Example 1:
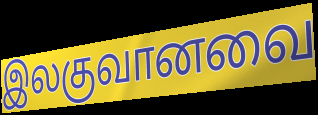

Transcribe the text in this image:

இலகுவானவை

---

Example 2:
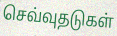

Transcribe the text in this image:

செவ்வுதடுகள்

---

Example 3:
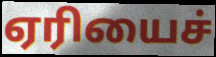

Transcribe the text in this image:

ஏரியைச்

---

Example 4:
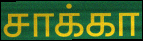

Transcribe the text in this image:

சாக்கா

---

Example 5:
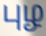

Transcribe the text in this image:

புழ